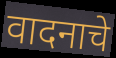
वादनाचे